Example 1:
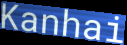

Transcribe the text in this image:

Kanhai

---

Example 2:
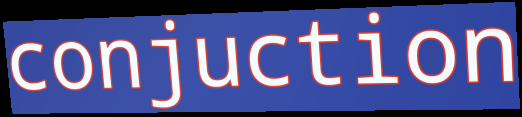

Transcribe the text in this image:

conjuction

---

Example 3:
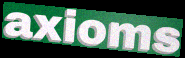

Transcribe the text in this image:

axioms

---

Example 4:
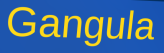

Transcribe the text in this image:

Gangula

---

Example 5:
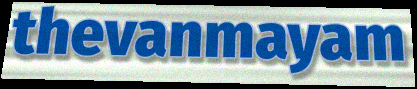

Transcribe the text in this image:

thevanmayam